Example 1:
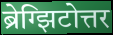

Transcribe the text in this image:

ब्रेग्झिटोत्तर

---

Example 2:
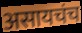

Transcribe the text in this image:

असायचंच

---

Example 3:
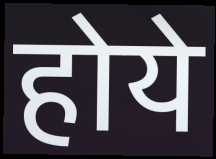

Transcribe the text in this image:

होये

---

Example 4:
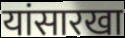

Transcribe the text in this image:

यांसारखा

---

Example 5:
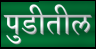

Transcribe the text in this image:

पुडीतील